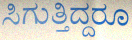
ಸಿಗುತ್ತಿದ್ದರೂ